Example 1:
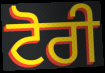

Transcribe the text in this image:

ਟੋਰੀ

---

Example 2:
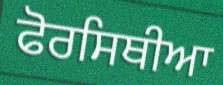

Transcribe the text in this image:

ਫੋਰਸਿਥੀਆ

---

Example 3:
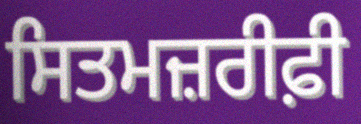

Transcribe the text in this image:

ਸਿਤਮਜ਼ਰੀਫ਼ੀ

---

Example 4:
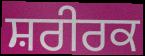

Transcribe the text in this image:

ਸ਼ਰੀਰਕ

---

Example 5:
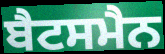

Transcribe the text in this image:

ਬੈਟਸਮੈਨ